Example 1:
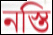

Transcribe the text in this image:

নস্তি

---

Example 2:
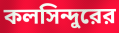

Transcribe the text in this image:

কলসিন্দুরের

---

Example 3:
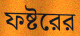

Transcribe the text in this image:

ফষ্টরের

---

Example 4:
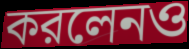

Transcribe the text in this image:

করলেনও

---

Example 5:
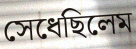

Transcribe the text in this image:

সেধেছিলেম